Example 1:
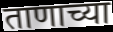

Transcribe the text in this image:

ताणाच्या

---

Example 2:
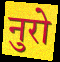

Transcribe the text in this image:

नुरो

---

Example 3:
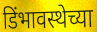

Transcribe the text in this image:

डिंभावस्थेच्या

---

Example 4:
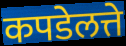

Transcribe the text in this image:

कपडेलत्ते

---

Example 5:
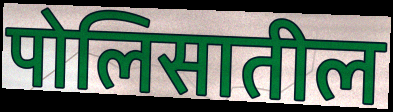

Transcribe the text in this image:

पोलिसातील